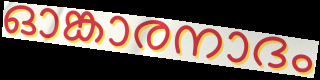
ഓങ്കാരനാദം